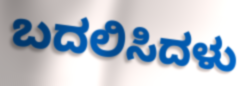
ಬದಲಿಸಿದಳು